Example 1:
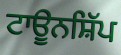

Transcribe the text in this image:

ਟਾਊਨਸ਼ਿੱਪ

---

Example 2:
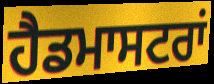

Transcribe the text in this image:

ਹੈਡਮਾਸਟਰਾਂ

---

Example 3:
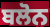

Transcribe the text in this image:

ਬਲੋਨ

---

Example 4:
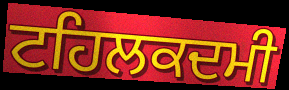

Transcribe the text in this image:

ਟਹਿਲਕਦਮੀ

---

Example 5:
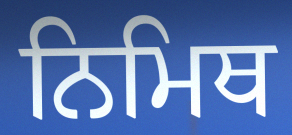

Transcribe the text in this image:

ਨਿਮਿਥ